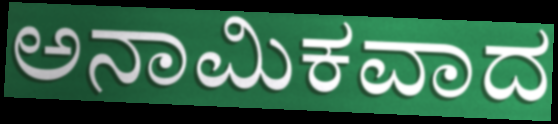
ಅನಾಮಿಕವಾದ